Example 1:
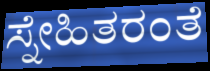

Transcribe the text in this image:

ಸ್ನೇಹಿತರಂತೆ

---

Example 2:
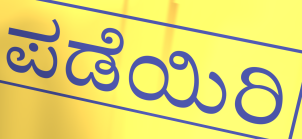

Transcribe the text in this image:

ಪಡೆಯಿರಿ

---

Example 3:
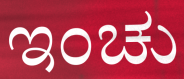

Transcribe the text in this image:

ಇಂಚು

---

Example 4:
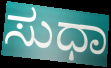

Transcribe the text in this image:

ಸುಧಾ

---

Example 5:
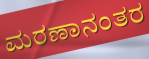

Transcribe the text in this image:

ಮರಣಾನಂತರ